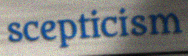
scepticism